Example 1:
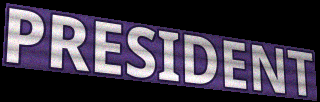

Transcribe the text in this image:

PRESIDENT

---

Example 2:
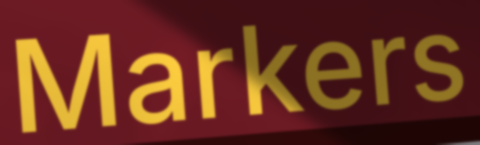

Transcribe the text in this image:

Markers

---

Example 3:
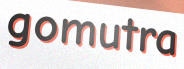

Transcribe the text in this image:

gomutra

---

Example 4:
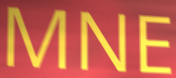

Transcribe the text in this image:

MNE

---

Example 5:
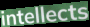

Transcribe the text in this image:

intellects